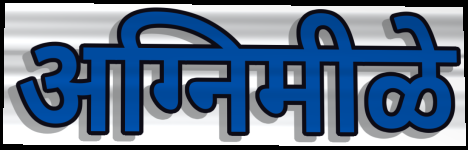
अग्निमीळे